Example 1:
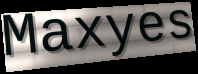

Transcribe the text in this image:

Maxyes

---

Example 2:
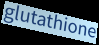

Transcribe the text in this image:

glutathione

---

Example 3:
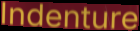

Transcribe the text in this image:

Indenture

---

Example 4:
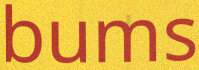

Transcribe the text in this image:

bums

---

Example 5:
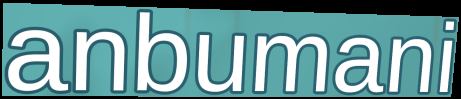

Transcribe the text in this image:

anbumani